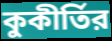
কুকীর্তির